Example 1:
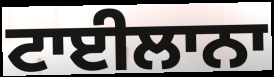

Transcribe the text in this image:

ਟਾਈਲਾਨਾ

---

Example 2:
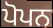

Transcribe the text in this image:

ਪੋਪਨ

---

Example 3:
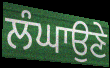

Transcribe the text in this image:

ਲੰਘਾਉਣੇ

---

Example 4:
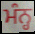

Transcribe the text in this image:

ਮੰਨ੍ਹ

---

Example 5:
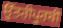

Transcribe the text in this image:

ਉੱਤਰੀਪੂਰਬੀ